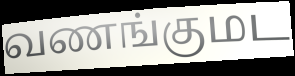
வணங்குமட